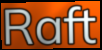
Raft